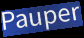
Pauper